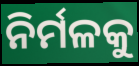
ନିର୍ମଳକୁ